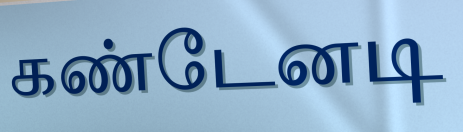
கண்டேனடி